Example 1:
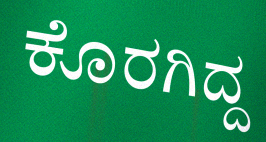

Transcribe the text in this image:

ಕೊರಗಿದ್ದ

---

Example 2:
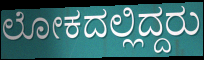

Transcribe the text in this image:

ಲೋಕದಲ್ಲಿದ್ದರು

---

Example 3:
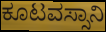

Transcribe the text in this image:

ಕೂಟವಸ್ಸಾನಿ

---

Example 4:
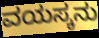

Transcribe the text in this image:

ವಯಸ್ಕನು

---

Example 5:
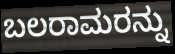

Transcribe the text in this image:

ಬಲರಾಮರನ್ನು